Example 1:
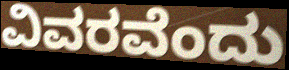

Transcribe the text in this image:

ವಿವರವೆಂದು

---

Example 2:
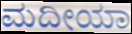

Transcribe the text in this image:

ಮದೀಯಾ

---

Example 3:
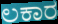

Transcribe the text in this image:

ಲಕಾರ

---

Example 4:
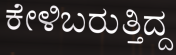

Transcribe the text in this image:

ಕೇಳಿಬರುತ್ತಿದ್ದ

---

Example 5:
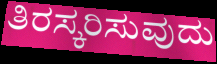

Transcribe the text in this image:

ತಿರಸ್ಕರಿಸುವುದು